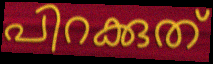
പിറക്കുത്